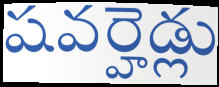
షవర్హెడ్లు